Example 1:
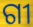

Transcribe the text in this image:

ଗୀ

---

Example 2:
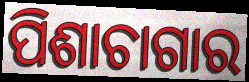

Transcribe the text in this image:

ପିଶାଚାଗାର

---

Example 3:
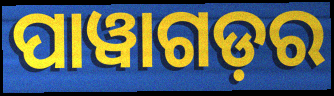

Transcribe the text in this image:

ପାୱାଗଡ଼ର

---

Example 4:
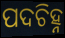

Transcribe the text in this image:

ପଦଚିହ୍ନ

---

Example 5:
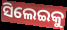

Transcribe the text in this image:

ସିଲେଇକୁ